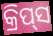
କ୍ରିପ୍‍ସ